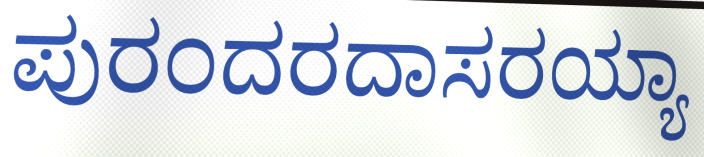
ಪುರಂದರದಾಸರಯ್ಯಾ